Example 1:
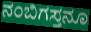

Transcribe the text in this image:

ನಂಬಿಗಸ್ತನೂ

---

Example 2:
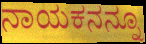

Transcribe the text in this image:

ನಾಯಕನನ್ನೂ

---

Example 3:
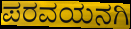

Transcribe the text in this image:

ಪರವಯನಗಿ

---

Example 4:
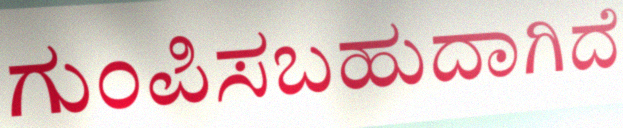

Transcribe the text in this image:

ಗುಂಪಿಸಬಹುದಾಗಿದೆ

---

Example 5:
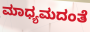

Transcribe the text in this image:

ಮಾಧ್ಯಮದಂತೆ